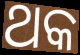
ଥକ